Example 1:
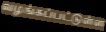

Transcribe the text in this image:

வழங்கப்பட்டுள்ள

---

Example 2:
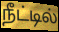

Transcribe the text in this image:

நீட்டில்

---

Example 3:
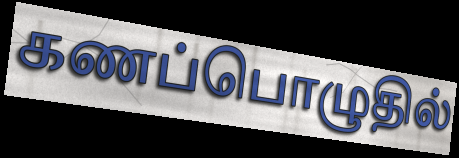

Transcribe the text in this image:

கணப்பொழுதில்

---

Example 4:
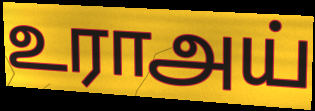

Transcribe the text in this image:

உராஅய்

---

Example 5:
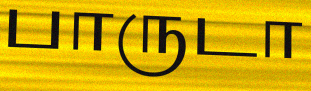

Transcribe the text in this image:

பாருடா